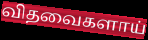
விதவைகளாய்